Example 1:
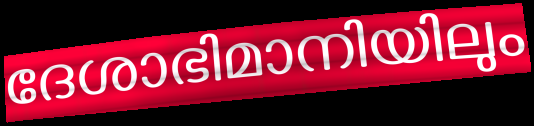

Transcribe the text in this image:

ദേശാഭിമാനിയിലും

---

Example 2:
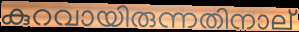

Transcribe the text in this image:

കുറവായിരുന്നതിനാല്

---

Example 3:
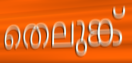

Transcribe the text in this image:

തെലുങ്ക്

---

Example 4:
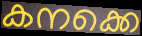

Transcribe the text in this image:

കനക്കെ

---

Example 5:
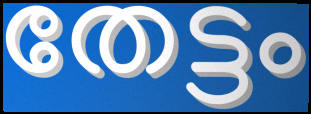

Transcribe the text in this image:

തേട്ടം